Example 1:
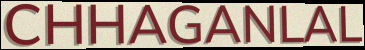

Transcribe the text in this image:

CHHAGANLAL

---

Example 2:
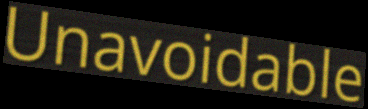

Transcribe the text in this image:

Unavoidable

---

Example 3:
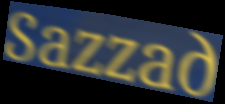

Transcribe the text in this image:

Sazzad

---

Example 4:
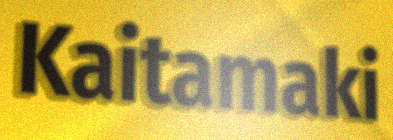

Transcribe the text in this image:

Kaitamaki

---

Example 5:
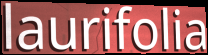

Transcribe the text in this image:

laurifolia